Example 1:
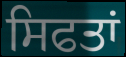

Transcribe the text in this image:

ਸਿਫਤਾਂ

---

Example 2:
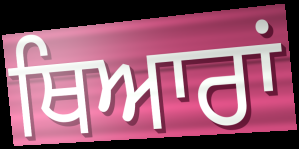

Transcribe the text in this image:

ਥਿਆਰਾਂ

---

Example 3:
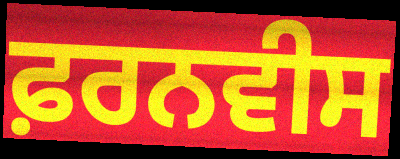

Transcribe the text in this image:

ਫ਼ਰਨਵੀਸ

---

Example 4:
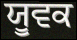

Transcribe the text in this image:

ਯੂਵਕ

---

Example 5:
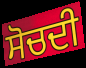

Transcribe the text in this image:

ਸੋਚਦੀ